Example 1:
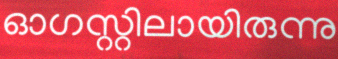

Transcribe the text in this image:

ഓഗസ്റ്റിലായിരുന്നു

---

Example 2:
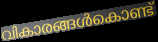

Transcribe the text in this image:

വികാരങ്ങൾകൊണ്ട്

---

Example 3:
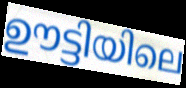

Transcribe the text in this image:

ഊട്ടിയിലെ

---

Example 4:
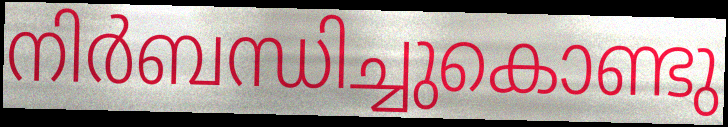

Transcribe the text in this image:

നിർബന്ധിച്ചുകൊണ്ടു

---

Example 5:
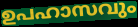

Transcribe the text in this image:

ഉപഹാസവും